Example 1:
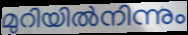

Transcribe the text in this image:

മുറിയിൽനിന്നും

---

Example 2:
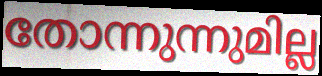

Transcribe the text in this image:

തോന്നുന്നുമില്ല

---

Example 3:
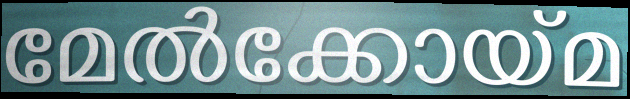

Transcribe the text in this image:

മേൽക്കോയ്മ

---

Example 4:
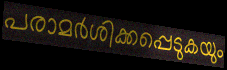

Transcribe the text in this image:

പരാമർശിക്കപ്പെടുകയും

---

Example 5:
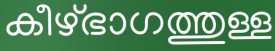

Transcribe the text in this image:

കീഴ്ഭാഗത്തുള്ള